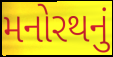
મનોરથનું